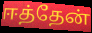
ஈத்தேன்